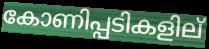
കോണിപ്പടികളില്